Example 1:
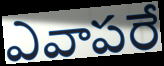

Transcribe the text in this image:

ఎవాపరే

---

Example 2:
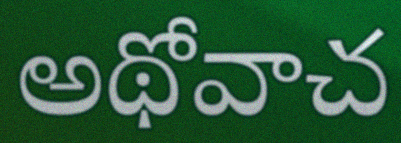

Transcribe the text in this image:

అథోవాచ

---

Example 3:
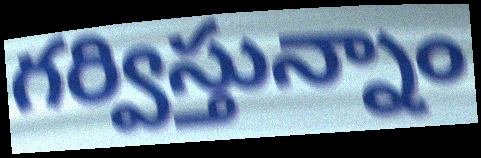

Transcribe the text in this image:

గర్విస్తున్నాం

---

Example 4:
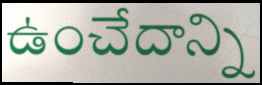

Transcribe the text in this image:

ఉంచేదాన్ని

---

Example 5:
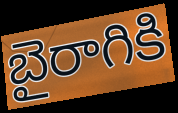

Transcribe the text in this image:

బైరాగికి